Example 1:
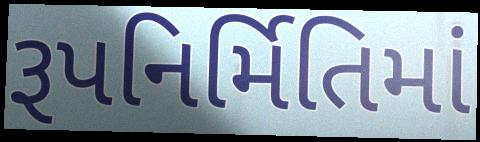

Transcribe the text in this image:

રૂપનિર્મિતિમાં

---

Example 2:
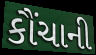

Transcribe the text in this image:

કૌંચાની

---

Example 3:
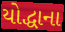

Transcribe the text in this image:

યોદ્ધાના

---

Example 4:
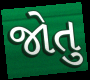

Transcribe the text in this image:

જોતુ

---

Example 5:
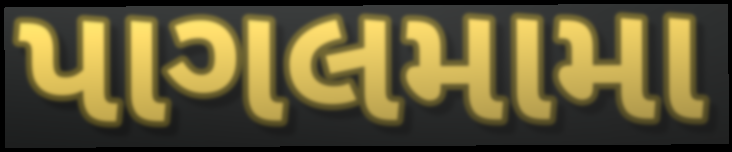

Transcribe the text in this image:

પાગલમામા